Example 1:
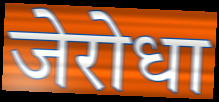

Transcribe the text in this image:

जेरोधा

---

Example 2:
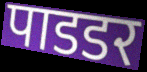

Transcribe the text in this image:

पाडडर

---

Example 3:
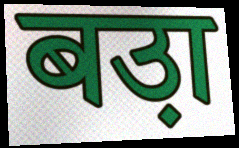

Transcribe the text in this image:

बउ़ा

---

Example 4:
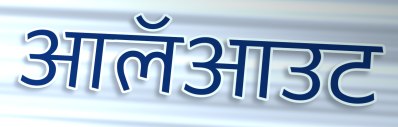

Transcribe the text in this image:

आलॅआउट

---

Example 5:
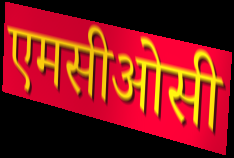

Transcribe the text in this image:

एमसीओसी